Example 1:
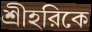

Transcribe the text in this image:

শ্রীহরিকে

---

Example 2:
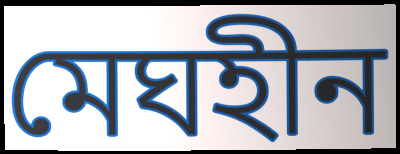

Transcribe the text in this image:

মেঘহীন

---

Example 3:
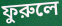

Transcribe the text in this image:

ফুরুলে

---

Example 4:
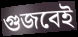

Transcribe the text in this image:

গুজবেই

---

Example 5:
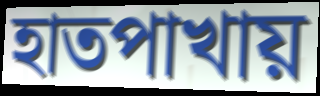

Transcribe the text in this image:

হাতপাখায়